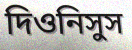
দিওনিসুস